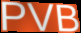
PVB